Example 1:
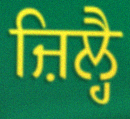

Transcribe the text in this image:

ਜ਼ਿਲ੍ਹੈ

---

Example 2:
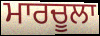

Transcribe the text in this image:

ਮਾਰਚੂਲਾ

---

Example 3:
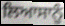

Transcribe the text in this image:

ਲਿਆਸਾਨੂੰ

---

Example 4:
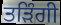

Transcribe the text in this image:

ਤੜਿੰਗੀ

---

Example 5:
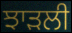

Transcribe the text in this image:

ਝਾੜਲੀ